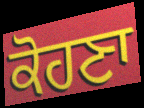
ਕੋਹਣਾ